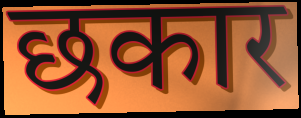
छकार